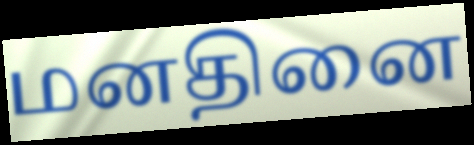
மனதினை